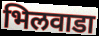
भिलवाडा